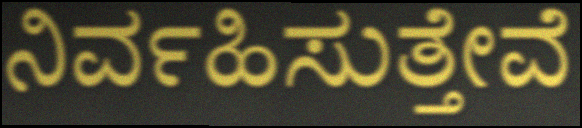
ನಿರ್ವಹಿಸುತ್ತೇವೆ